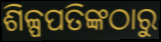
ଶିଳ୍ପପତିଙ୍କଠାରୁ